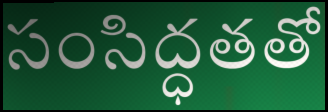
సంసిద్ధతతో